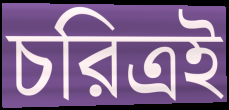
চরিত্রই